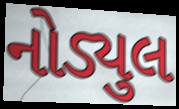
નોડ્યુલ